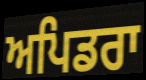
ਅਪਿਡਰਾ